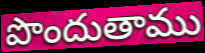
పొందుతాము